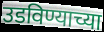
उडविण्याच्या